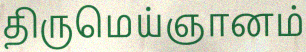
திருமெய்ஞானம்